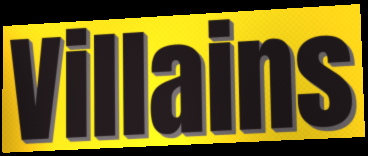
Villains